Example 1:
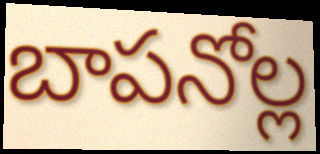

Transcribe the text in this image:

బాపనోల్ల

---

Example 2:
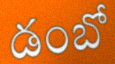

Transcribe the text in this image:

డంబో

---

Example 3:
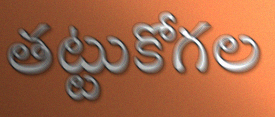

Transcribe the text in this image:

తట్టుకోగల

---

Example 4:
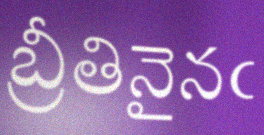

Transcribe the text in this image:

బ్రీతినైనఁ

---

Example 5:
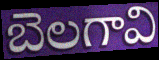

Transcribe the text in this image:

బెలగావి